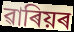
ৱাৰিয়ৰ